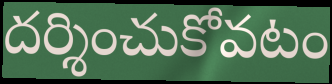
దర్శించుకోవటం